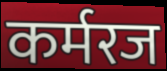
कर्मरज